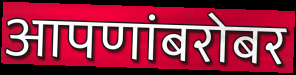
आपणांबरोबर